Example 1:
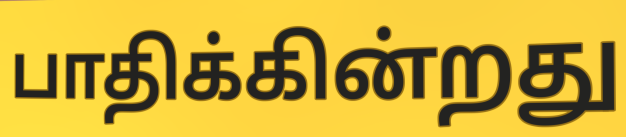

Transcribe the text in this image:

பாதிக்கின்றது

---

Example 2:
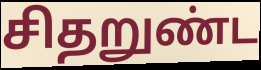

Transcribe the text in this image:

சிதறுண்ட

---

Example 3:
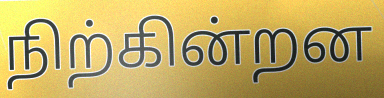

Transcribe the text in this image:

நிற்கின்றன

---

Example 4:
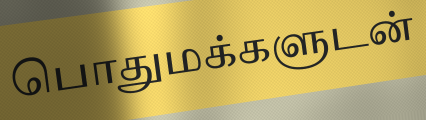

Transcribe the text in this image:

பொதுமக்களுடன்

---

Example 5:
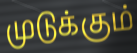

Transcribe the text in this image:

முடுக்கும்